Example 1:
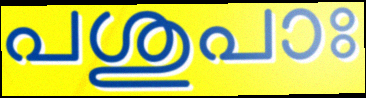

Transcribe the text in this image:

പശുപാഃ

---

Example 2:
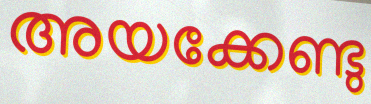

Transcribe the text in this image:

അയക്കേണ്ടു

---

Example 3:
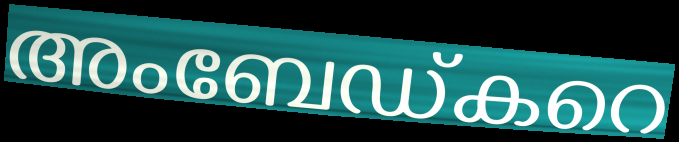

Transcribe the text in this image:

അംബേഡ്കറെ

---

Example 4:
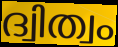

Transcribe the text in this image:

ദ്വിത്വം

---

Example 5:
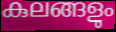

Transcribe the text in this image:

കുലങ്ങളും